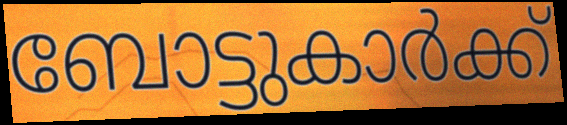
ബോട്ടുകാർക്ക്